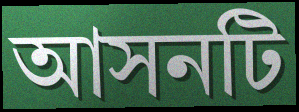
আসনটি